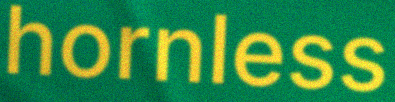
hornless